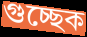
গুচ্ছেক